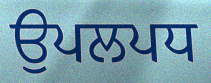
ਉਪਲਪਧ